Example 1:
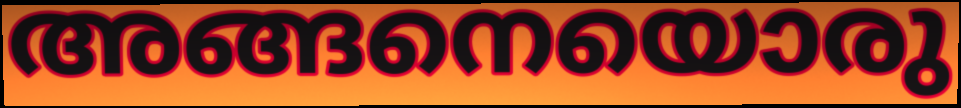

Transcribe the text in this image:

അങ്ങനെയൊരു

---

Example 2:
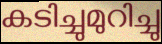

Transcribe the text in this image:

കടിച്ചുമുറിച്ചു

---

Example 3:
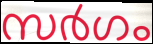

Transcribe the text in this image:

സർഗം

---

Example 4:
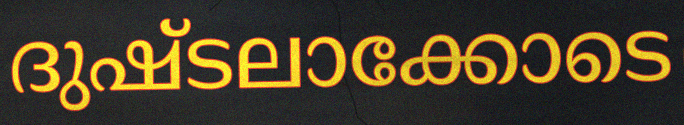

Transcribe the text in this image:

ദുഷ്ടലാക്കോടെ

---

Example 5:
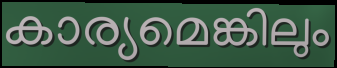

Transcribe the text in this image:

കാര്യമെങ്കിലും